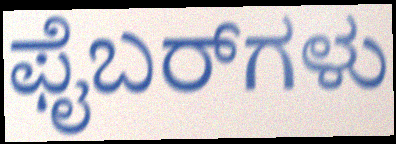
ಫೈಬರ್‌ಗಳು